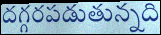
దగ్గరపడుతున్నది